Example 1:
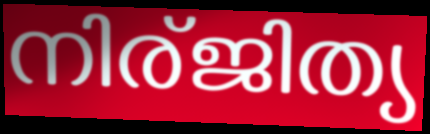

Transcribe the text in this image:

നിര്ജിത്യ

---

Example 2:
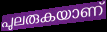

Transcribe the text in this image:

പുലരുകയാണ്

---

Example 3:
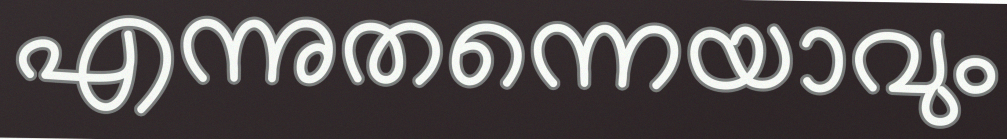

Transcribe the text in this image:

എന്നുതന്നെയാവും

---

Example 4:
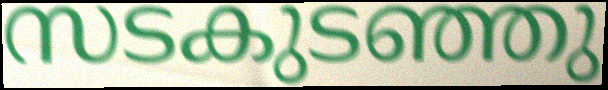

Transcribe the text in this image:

സടകുടഞ്ഞു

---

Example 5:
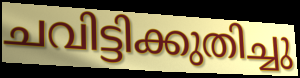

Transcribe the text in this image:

ചവിട്ടിക്കുതിച്ചു